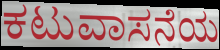
ಕಟುವಾಸನೆಯ